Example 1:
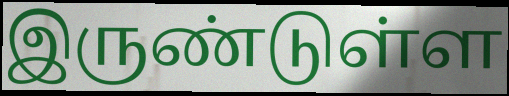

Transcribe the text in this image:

இருண்டுள்ள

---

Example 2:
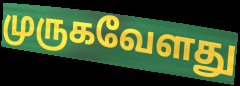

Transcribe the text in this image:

முருகவேளது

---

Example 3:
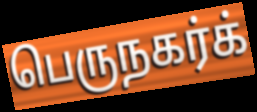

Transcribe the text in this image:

பெருநகர்க்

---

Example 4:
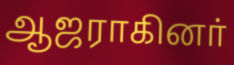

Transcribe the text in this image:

ஆஜராகினர்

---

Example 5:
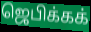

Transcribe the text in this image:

ஜெபிக்கக்